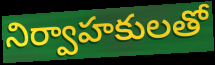
నిర్వాహకులతో